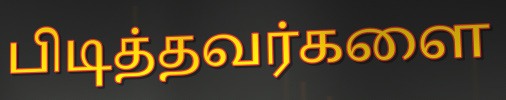
பிடித்தவர்களை